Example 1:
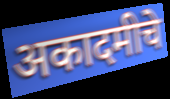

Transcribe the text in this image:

अकादमीचे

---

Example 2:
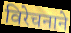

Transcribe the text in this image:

विरेचनाने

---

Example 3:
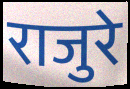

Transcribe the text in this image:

राजुरे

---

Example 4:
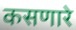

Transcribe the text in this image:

कसणारे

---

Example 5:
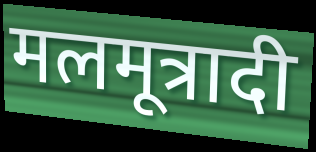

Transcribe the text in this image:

मलमूत्रादी